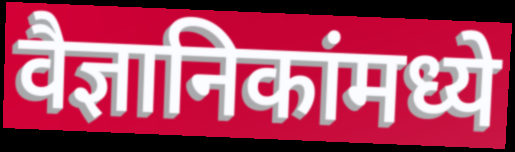
वैज्ञानिकांमध्ये